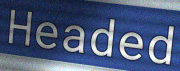
Headed